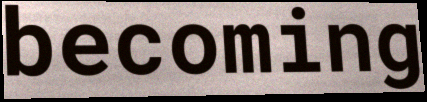
becoming